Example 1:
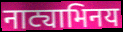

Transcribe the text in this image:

नाट्याभिनय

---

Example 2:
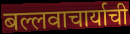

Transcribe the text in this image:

बल्लवाचार्याची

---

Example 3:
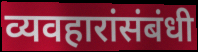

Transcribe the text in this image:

व्यवहारांसंबंधी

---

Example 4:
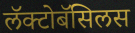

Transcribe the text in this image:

लॅक्टोबॅसिलस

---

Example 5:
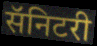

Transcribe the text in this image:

सॅनिटरी